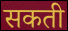
सकती